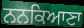
ਨਨਕਿਆਣਾ